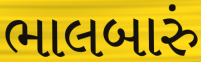
ભાલબારું